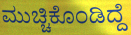
ಮುಚ್ಚಿಕೊಂಡಿದ್ದೆ